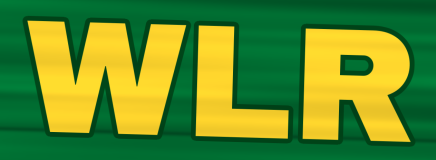
WLR